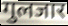
गुलजार